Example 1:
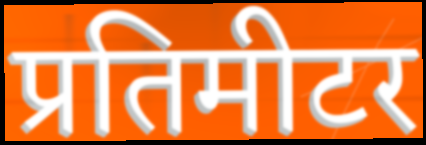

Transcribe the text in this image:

प्रतिमीटर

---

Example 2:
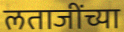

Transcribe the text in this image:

लताजींच्या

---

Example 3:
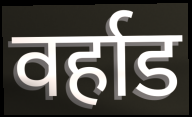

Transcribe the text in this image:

वर्हाड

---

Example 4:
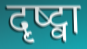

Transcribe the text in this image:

दृष्ट्वा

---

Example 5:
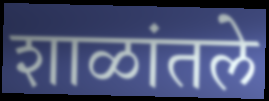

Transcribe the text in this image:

शाळांतले